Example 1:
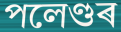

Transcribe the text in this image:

পলেণ্ডৰ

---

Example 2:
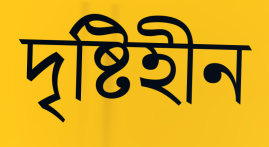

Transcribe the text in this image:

দৃষ্টিহীন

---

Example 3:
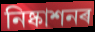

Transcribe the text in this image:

নিষ্কাশনৰ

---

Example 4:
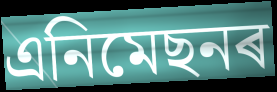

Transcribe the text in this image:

এনিমেছনৰ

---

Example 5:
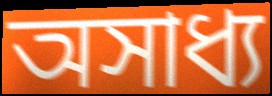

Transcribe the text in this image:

অসাধ্য